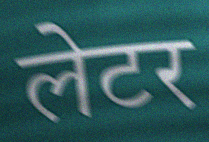
लेटर